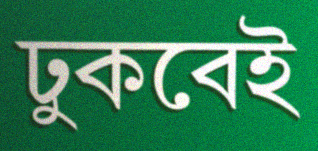
ঢুকবেই